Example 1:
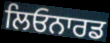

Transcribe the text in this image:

ਲਿਓਨਾਰਡ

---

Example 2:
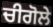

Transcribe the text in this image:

ਚੀਗੋਲੇ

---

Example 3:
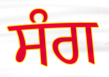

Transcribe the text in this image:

ਸੰਗ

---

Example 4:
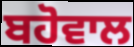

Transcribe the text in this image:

ਬਹੋਵਾਲ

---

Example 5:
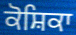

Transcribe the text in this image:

ਕੋਸ਼ਿਕਾ